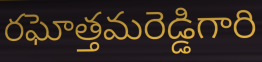
రఘోత్తమరెడ్డిగారి